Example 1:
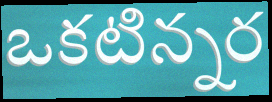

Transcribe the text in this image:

ఒకటిన్నర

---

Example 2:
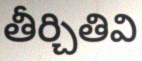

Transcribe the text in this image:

తీర్చితివి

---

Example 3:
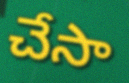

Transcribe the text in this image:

చేసా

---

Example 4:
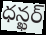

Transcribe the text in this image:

ధన్ఖర్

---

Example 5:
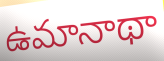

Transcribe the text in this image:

ఉమానాథా